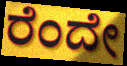
ರೆಂದೇ